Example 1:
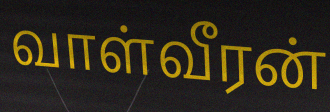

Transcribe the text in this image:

வாள்வீரன்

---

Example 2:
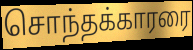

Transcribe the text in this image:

சொந்தக்காரரை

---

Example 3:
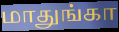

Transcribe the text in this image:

மாதுங்கா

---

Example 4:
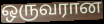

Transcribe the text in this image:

ஒருவரான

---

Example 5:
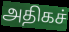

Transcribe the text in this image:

அதிகச்